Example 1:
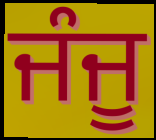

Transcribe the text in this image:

ਜੰਜੂ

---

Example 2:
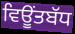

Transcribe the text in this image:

ਵਿਊਂਤਬੱਧ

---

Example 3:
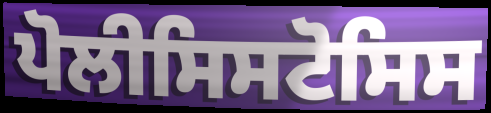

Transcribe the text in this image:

ਪੋਲੀਸਿਸਟੋਸਿਸ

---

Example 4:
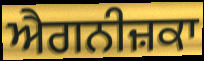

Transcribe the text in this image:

ਐਗਨੀਜ਼ਕਾ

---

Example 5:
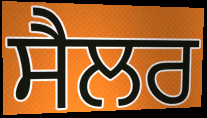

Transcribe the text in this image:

ਸੈਲਰ